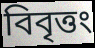
বিবৃত্তং